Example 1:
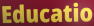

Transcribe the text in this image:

Educatio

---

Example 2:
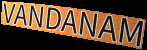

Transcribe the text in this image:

VANDANAM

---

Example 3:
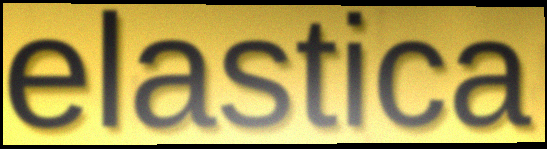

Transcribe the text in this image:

elastica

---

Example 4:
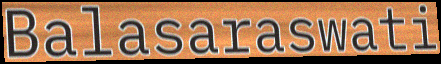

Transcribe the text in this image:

Balasaraswati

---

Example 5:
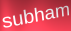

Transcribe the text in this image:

subham